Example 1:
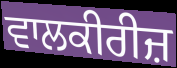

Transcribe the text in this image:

ਵਾਲਕੀਰੀਜ਼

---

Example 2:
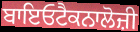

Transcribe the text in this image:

ਬਾਇਓਟੈਕਨਾਲੋਜ਼ੀ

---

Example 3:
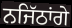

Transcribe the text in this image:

ਨਜਿੱਠਾਂਗੇ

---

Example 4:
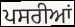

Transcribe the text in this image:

ਪਸਰੀਆਂ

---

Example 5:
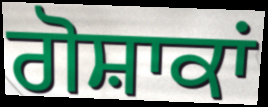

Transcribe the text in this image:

ਗੋਸ਼ਾਕਾਂ